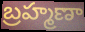
బ్రహ్మణా